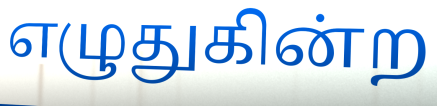
எழுதுகின்ற